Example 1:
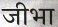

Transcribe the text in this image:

जीभा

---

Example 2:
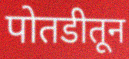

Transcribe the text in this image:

पोतडीतून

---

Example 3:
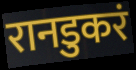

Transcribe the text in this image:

रानडुकरं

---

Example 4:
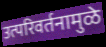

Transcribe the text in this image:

उत्परिवर्तनामुळे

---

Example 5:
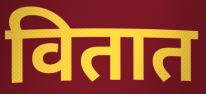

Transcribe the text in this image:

वितात